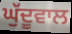
ਘੁੱਦੂਵਾਲ